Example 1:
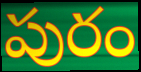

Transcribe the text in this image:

పురం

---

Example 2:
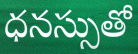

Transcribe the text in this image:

ధనస్సుతో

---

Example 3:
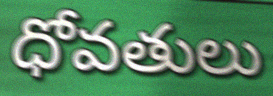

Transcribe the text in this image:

ధోవతులు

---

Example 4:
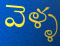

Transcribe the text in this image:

వెళ్ళ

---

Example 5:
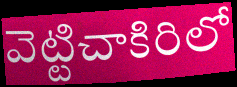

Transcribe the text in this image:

వెట్టిచాకిరిలో